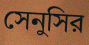
সেনুসির